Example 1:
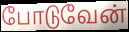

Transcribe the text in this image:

போடுவேன்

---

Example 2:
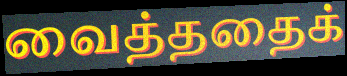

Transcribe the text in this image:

வைத்ததைக்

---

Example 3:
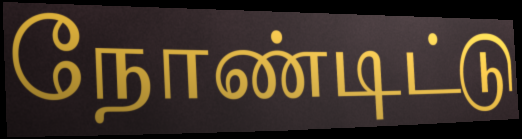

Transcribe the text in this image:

நோண்டிட்டு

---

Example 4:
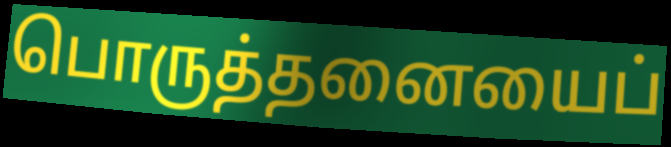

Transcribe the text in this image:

பொருத்தனையைப்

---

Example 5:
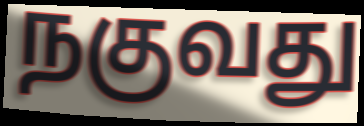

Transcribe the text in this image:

நகுவது